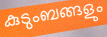
കുടുംബങ്ങളും